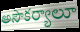
అసౌకర్యాలూ